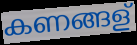
കണങ്ങള്